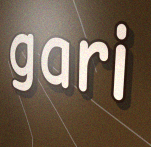
gari